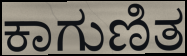
ಕಾಗುಣಿತ